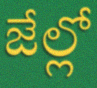
జేల్లో